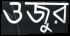
ওজুর